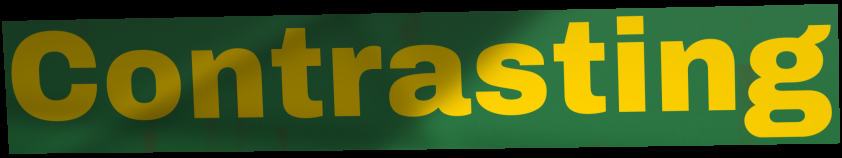
Contrasting